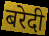
बरेदी